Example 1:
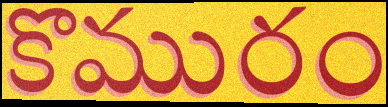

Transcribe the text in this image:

కొమురం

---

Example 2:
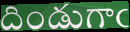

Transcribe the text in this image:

దిండుగాఁ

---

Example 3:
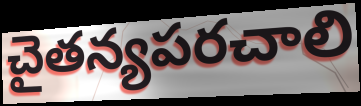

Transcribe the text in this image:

చైతన్యపరచాలి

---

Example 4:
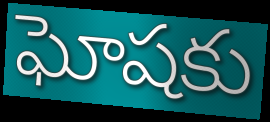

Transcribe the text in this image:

ఘోషకు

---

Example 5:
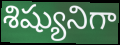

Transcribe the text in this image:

శిష్యునిగా